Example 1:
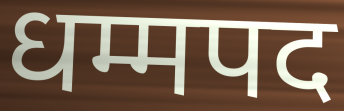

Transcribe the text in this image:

धम्मपद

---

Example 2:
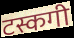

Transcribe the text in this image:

टस्कगी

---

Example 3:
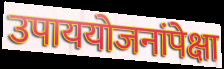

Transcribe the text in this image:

उपाययोजनांपेक्षा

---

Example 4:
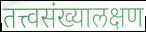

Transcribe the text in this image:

तत्त्वसंख्यालक्षण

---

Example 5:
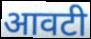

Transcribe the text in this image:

आवटी